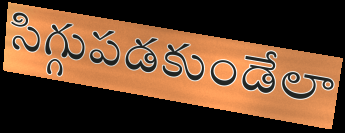
సిగ్గుపడకుండేలా